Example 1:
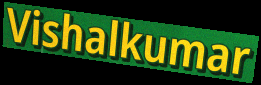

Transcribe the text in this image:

Vishalkumar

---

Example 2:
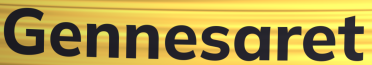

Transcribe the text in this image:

Gennesaret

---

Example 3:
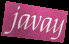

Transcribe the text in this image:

javay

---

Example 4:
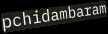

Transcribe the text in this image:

pchidambaram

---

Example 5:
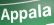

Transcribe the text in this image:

Appala